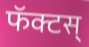
फॅक्टस्